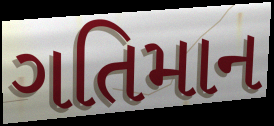
ગતિમાન